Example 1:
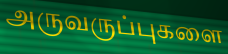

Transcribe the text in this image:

அருவருப்புகளை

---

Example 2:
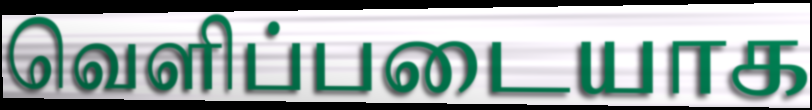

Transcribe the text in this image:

வெளிப்படையாக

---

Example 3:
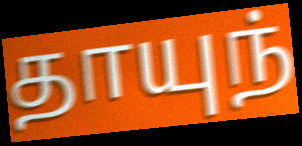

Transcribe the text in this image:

தாயுந்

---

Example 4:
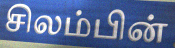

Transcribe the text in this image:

சிலம்பின்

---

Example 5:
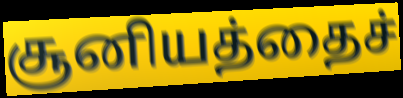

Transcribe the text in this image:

சூனியத்தைச்